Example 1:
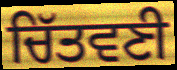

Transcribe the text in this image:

ਚਿੱਤਵਣੀ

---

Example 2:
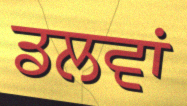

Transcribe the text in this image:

ਡਲਵਾਂ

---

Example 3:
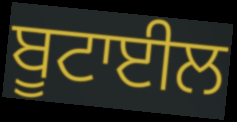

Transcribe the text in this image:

ਬੂਟਾਈਲ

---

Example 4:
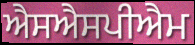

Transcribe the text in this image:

ਐਸਐਸਪੀਐਮ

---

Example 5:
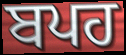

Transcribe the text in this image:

ਬਪਹ